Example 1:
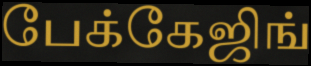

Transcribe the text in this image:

பேக்கேஜிங்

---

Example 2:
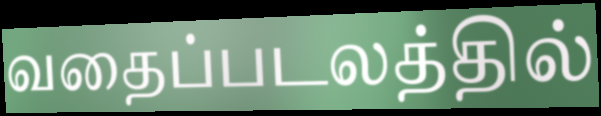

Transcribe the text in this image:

வதைப்படலத்தில்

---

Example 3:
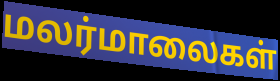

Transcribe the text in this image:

மலர்மாலைகள்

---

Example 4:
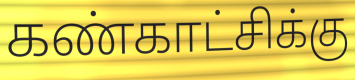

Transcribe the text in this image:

கண்காட்சிக்கு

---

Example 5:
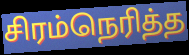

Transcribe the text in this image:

சிரம்நெரித்த